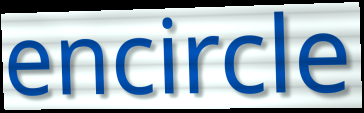
encircle